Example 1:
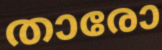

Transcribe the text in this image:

താരോ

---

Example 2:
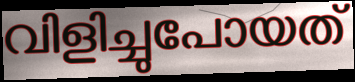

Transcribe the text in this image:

വിളിച്ചുപോയത്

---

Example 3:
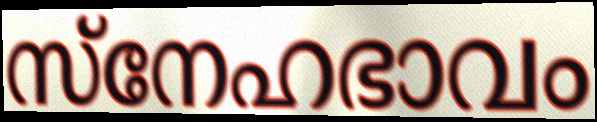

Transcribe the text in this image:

സ്നേഹഭാവം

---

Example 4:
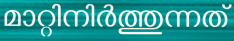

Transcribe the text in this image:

മാറ്റിനിർത്തുന്നത്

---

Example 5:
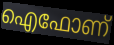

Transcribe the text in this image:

ഐഫോണ്